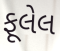
ફૂલેલ